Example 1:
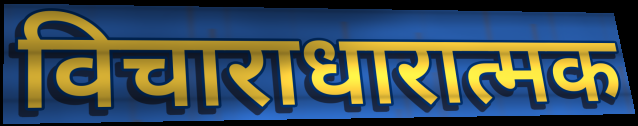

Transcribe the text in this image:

विचाराधारात्मक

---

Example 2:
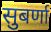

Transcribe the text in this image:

सुबर्णा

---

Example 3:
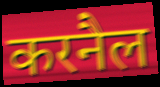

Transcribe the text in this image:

करनैल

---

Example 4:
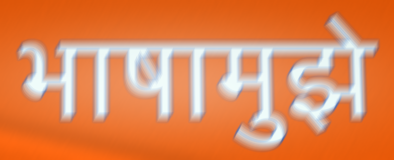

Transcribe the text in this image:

भाषामुझे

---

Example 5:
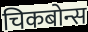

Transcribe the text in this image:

चिकबोन्स